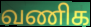
வணிக